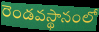
రెండవస్థానంలో